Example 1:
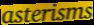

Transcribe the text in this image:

asterisms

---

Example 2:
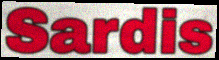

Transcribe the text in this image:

Sardis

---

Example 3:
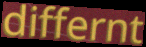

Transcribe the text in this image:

differnt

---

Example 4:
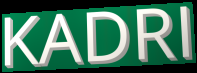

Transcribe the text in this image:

KADRI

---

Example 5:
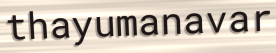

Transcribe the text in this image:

thayumanavar